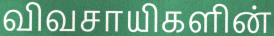
விவசாயிகளின்